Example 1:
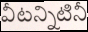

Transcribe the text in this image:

వీటన్నిటినీ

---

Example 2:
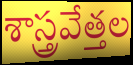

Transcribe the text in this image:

శాస్త్రవేత్తల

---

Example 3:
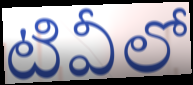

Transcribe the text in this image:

టివీలో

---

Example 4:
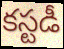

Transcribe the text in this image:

కస్టడీ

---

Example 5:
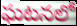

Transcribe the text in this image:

ఘటనలో